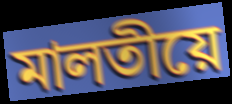
মালতীয়ে